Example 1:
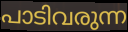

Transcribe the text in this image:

പാടിവരുന്ന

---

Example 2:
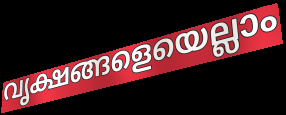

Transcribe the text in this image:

വൃക്ഷങ്ങളെയെല്ലാം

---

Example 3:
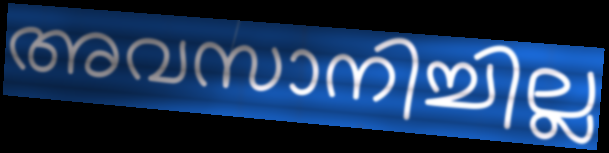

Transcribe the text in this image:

അവസാനിച്ചില്ല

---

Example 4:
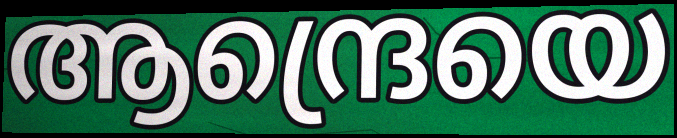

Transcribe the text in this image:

ആന്ദ്രെയെ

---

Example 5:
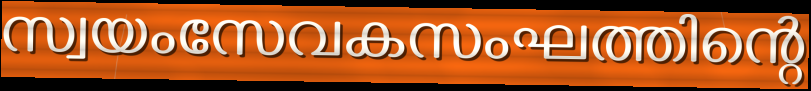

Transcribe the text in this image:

സ്വയംസേവകസംഘത്തിന്റെ